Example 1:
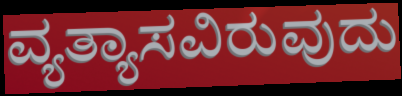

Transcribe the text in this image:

ವ್ಯತ್ಯಾಸವಿರುವುದು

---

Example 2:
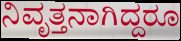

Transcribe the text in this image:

ನಿವೃತ್ತನಾಗಿದ್ದರೂ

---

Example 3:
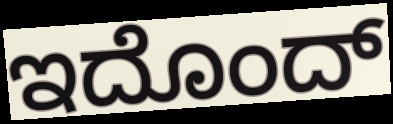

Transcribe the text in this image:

ಇದೊಂದ್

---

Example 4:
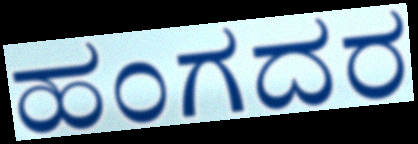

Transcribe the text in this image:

ಹಂಗದರ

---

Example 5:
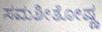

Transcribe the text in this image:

ಸಮಶೀತೋಷ್ಣ